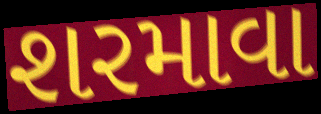
શરમાવા